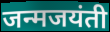
जन्मजयंती